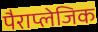
पैराप्लेजिक